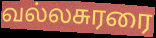
வல்லசுரரை